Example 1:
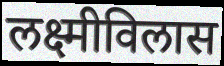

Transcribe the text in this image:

लक्ष्मीविलास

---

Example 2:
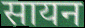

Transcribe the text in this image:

सायन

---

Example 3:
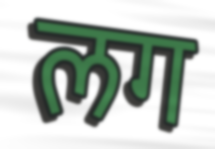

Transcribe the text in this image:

लग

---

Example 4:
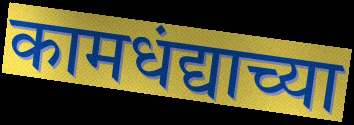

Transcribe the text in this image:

कामधंद्याच्या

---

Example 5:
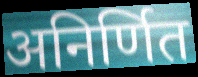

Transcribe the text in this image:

अनिर्णित